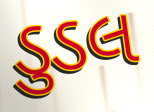
ડુડલ